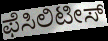
ಫೆಸಿಲಿಟೀಸ್